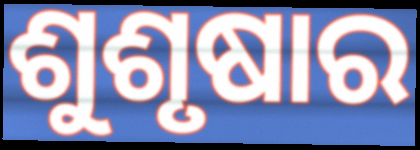
ଶୁଶୃଷାର